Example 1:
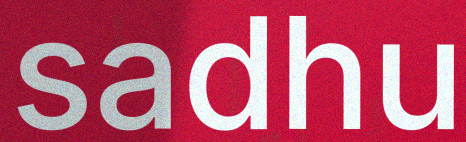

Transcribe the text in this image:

sadhu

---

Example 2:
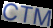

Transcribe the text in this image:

CTM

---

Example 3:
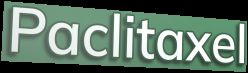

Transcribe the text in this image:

Paclitaxel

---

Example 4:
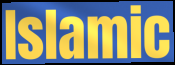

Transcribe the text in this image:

Islamic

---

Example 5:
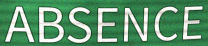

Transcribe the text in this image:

ABSENCE